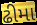
ઢીમા